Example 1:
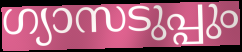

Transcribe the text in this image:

ഗ്യാസടുപ്പും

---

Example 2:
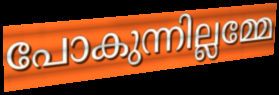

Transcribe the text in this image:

പോകുന്നില്ലമ്മേ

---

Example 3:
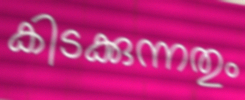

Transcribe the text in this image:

കിടക്കുന്നതും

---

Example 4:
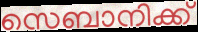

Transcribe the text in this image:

സെബാനിക്ക്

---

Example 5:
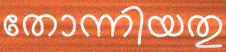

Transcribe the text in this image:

തോന്നിയതു